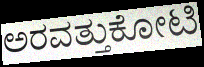
ಅರವತ್ತುಕೋಟಿ